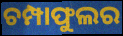
ଚମ୍ପାଫୁଲର